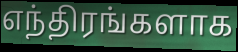
எந்திரங்களாக